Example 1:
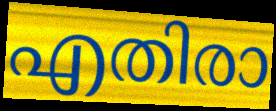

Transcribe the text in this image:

എതിരാ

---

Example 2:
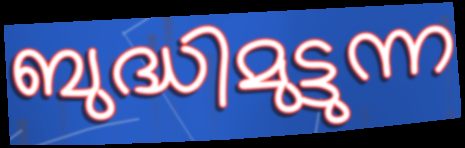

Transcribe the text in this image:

ബുദ്ധിമുട്ടുന്ന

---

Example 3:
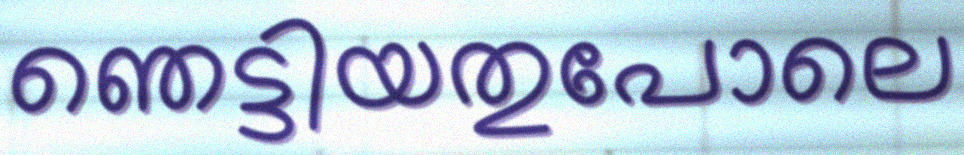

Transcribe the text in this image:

ഞെട്ടിയതുപോലെ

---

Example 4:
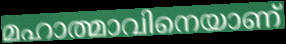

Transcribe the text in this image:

മഹാത്മാവിനെയാണ്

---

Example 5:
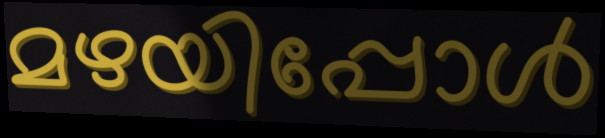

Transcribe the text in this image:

മഴയിപ്പോൾ